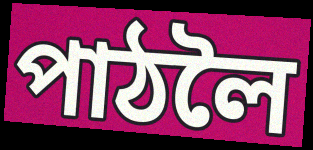
পাঠলৈ